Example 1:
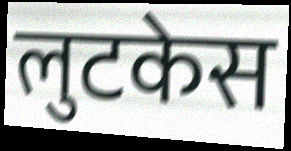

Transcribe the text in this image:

लुटकेस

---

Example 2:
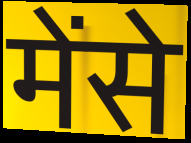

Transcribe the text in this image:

मेंसे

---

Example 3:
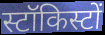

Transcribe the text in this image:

स्टॉकिस्टों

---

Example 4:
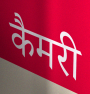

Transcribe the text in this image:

कैमरी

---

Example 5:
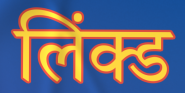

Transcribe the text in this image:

लिंक्ड